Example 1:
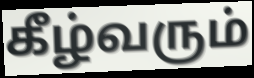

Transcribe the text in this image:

கீழ்வரும்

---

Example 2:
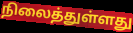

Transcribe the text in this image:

நிலைத்துள்ளது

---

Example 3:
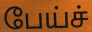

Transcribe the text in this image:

பேய்ச்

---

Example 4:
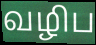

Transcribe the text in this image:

வழிப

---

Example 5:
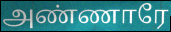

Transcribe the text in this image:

அண்ணாரே